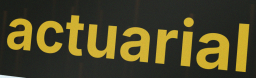
actuarial